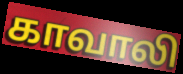
காவாலி